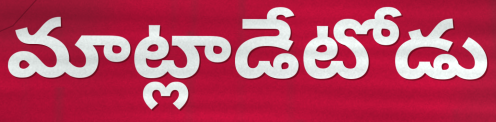
మాట్లాడేటోడు